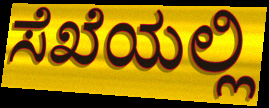
ಸೆಖೆಯಲ್ಲಿ